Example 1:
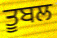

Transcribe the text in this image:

ਤੂਬਲ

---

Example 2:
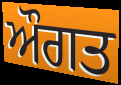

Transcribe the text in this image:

ਔਗਤ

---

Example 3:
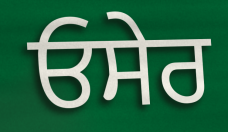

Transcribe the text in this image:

ਓਸੇਰ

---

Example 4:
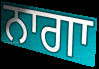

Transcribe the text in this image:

ਨਾਗਾ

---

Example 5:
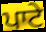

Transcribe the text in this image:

ਪਾਟੇ